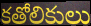
కతోలికులు